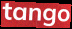
tango